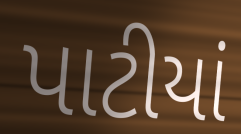
પાટીયાં